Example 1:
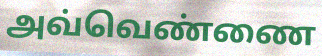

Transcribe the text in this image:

அவ்வெண்ணை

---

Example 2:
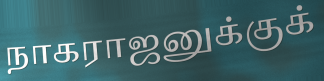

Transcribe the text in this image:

நாகராஜனுக்குக்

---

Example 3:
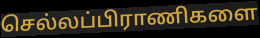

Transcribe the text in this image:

செல்லப்பிராணிகளை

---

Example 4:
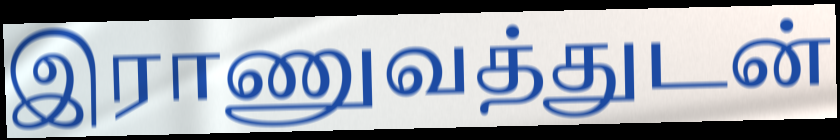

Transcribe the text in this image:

இராணுவத்துடன்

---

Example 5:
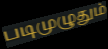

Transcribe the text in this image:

படிமுழுதும்